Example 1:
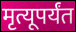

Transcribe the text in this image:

मृत्यूपर्यंत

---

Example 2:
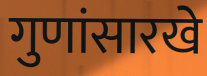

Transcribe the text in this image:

गुणांसारखे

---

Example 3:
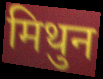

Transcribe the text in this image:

मिथुन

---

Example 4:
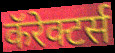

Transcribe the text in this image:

कॅरेक्टर्स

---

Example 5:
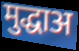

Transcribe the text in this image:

मुद्धाअ